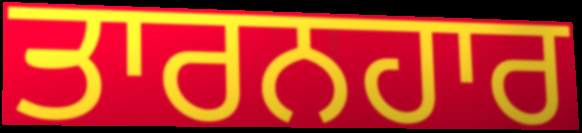
ਤਾਰਨਹਾਰ